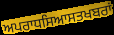
ਅਪਰਾਧਸਿਆਸਤਖਬਰਾਂ